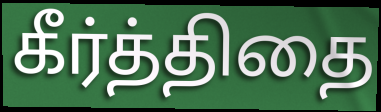
கீர்த்திதை